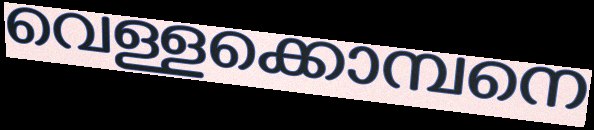
വെള്ളക്കൊമ്പനെ